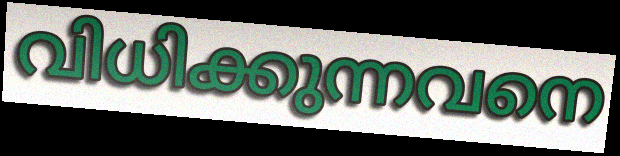
വിധിക്കുന്നവനെ